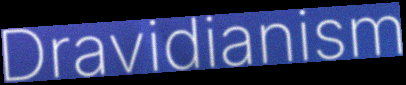
Dravidianism